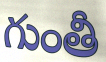
గుంతీ